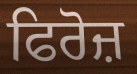
ਫਿਰੋਜ਼